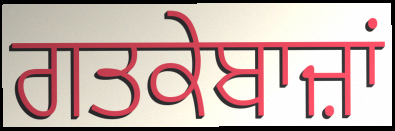
ਗਤਕੇਬਾਜ਼ਾਂ